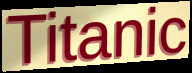
Titanic